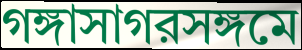
গঙ্গাসাগরসঙ্গমে